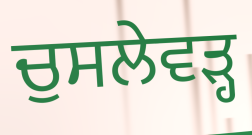
ਚੁਸਲੇਵੜ੍ਹ